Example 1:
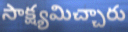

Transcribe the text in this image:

సాక్ష్యమిచ్చారు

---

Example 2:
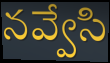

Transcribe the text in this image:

నవ్వేసి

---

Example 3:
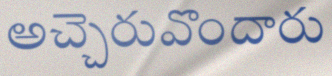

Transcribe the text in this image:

అచ్చెరువొందారు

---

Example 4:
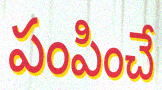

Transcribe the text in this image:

పంపించే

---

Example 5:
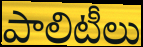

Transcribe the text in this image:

పాలిటీలు